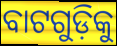
ବାଟଗୁଡ଼ିକୁ